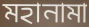
মহানামা